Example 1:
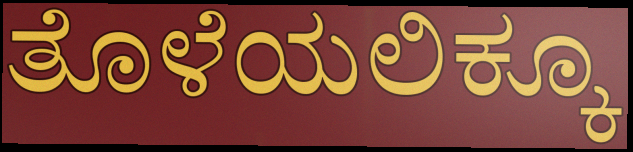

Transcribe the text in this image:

ತೊಳೆಯಲಿಕ್ಕೂ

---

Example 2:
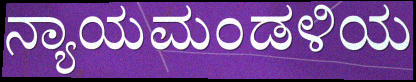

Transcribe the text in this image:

ನ್ಯಾಯಮಂಡಳಿಯ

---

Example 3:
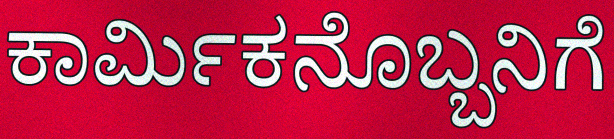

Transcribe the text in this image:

ಕಾರ್ಮಿಕನೊಬ್ಬನಿಗೆ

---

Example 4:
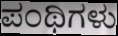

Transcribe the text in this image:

ಪಂಥಿಗಳು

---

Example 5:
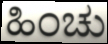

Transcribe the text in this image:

ಹಿಂಚು